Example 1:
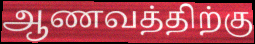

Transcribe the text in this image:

ஆணவத்திற்கு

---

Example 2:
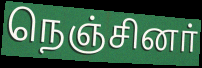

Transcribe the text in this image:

நெஞ்சினர்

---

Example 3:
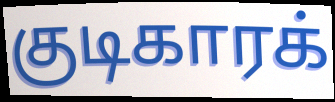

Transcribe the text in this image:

குடிகாரக்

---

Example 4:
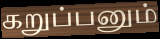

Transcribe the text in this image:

கறுப்பனும்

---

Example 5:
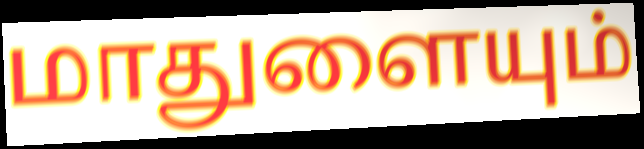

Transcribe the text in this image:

மாதுளையும்